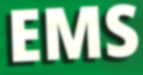
EMS